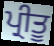
ਪ੍ਰੀਤੂ